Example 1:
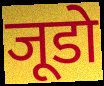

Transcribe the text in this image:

जूडो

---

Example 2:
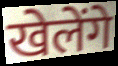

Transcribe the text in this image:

खेलेंगे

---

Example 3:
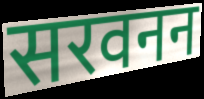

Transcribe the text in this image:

सरवनन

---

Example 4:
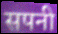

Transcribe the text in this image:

सपनी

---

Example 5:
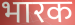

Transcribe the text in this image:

भारक